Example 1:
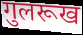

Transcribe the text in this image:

गुलरूख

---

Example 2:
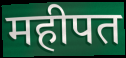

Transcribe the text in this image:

महीपत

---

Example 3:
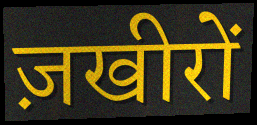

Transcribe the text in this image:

ज़खीरों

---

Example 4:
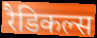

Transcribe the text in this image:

रैडिकल्स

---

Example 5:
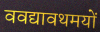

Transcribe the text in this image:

ववद्यावथमयों